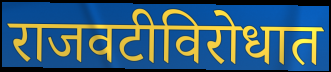
राजवटीविरोधात